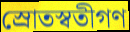
স্রোতস্বতীগণ